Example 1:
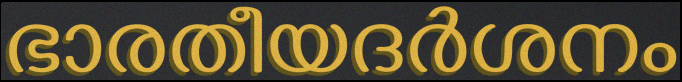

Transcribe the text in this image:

ഭാരതീയദർശനം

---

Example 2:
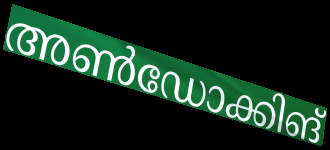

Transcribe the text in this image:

അൺഡോക്കിങ്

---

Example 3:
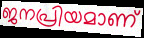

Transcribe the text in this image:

ജനപ്രിയമാണ്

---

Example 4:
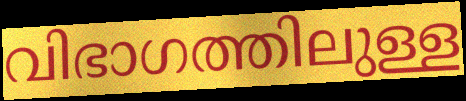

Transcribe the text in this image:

വിഭാഗത്തിലുള്ള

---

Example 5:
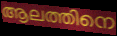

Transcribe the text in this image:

ആലത്തിനെ